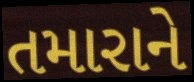
તમારાને